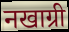
नखाग्री